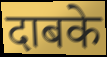
दाबके